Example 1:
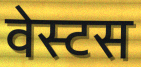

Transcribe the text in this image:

वेस्टस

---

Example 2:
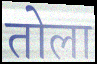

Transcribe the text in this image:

तोला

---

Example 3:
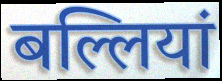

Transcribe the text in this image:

बल्लियां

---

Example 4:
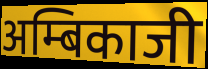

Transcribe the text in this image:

अम्बिकाजी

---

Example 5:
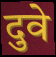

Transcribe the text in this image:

दुवे